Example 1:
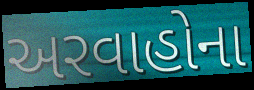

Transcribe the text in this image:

અરવાહોના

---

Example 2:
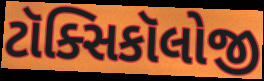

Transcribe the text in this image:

ટૉક્સિકૉલોજી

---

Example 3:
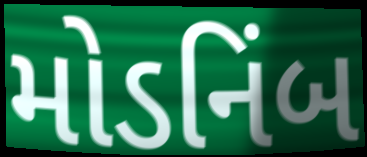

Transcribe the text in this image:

મોડનિંબ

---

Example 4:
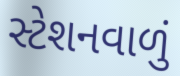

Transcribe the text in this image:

સ્ટેશનવાળું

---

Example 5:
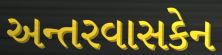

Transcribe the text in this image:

અન્તરવાસકેન